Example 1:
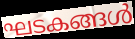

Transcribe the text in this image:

ഘടകങ്ങൾ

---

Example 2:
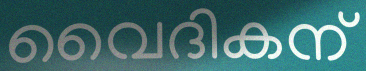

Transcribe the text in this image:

വൈദികന്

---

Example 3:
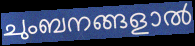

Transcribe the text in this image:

ചുംബനങ്ങളാൽ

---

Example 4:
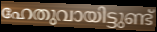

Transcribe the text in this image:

ഹേതുവായിട്ടുണ്ട്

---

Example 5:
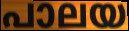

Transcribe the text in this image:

പാലയ